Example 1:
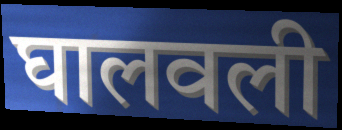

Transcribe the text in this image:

घालवली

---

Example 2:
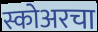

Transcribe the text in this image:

स्कोअरचा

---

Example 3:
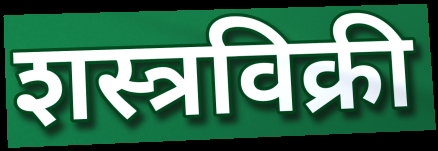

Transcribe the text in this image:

शस्त्रविक्री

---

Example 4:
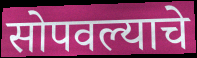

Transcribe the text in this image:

सोपवल्याचे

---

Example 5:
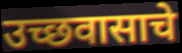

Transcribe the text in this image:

उच्छवासाचे